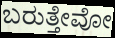
ಬರುತ್ತೇವೋ